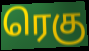
ரெகு